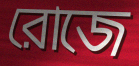
রোজে